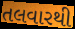
તલવારથી